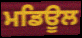
ਮਡਿਊਲ